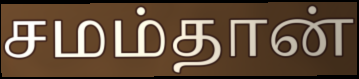
சமம்தான்